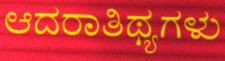
ಆದರಾತಿಥ್ಯಗಳು